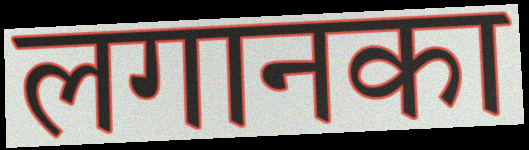
लगानका